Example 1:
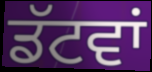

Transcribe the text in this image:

ਡੱਟਵਾਂ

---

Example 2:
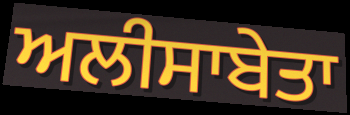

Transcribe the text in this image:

ਅਲੀਸਾਬੇਤਾ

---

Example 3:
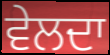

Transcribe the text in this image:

ਵੇਲਦਾ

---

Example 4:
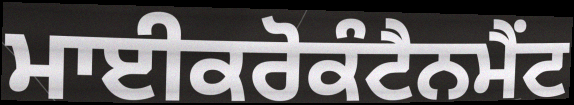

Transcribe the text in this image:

ਮਾਈਕਰੋਕੰਟੈਨਮੈਂਟ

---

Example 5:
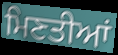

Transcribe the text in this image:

ਮਿਣਤੀਆਂ